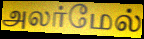
அலர்மேல்